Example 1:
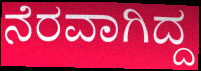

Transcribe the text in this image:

ನೆರವಾಗಿದ್ದ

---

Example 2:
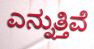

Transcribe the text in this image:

ಎನ್ನುತ್ತಿವೆ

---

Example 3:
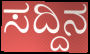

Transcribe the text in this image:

ಸದ್ದಿನ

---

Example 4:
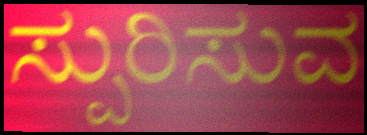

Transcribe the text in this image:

ಸ್ಪುರಿಸುವ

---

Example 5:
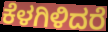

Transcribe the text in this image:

ಕೆಳಗಿಳಿದರೆ